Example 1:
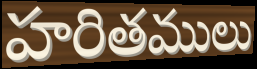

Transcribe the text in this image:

హరితములు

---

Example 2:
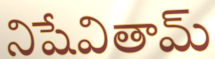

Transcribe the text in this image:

నిషేవితామ్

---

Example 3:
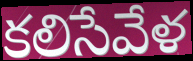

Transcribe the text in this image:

కలిసేవేళ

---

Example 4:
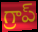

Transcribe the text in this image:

గ్రాప్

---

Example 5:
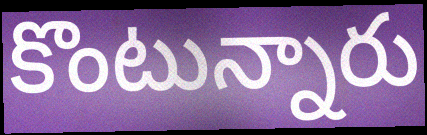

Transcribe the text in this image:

కొంటున్నారు